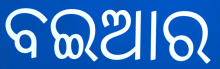
ବଇଆର